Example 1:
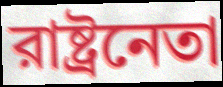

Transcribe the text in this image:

রাষ্ট্রনেতা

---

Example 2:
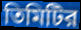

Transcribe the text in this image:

তিমিটির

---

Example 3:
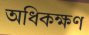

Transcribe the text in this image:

অধিকক্ষণ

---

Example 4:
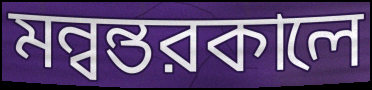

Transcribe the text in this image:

মন্বন্তরকালে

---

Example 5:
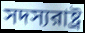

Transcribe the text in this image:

সদস্যরাষ্ট্র